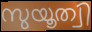
സുയൂത്വി